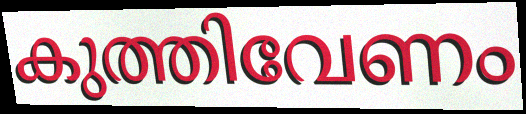
കുത്തിവേണം